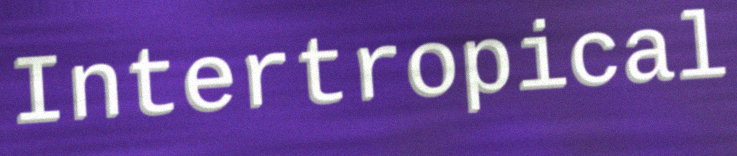
Intertropical